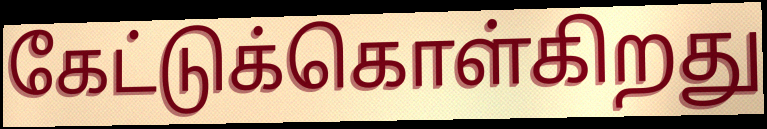
கேட்டுக்கொள்கிறது